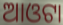
ଆଓଟା